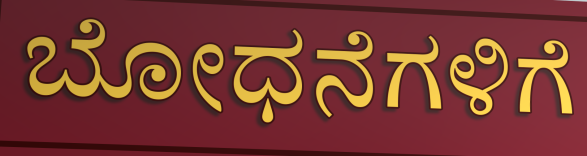
ಬೋಧನೆಗಳಿಗೆ